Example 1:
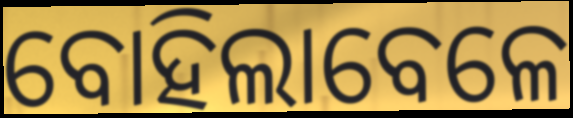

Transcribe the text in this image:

ବୋହିଲାବେଳେ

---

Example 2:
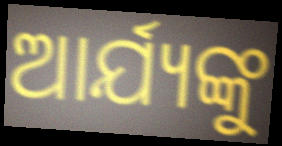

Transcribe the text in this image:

ଆର୍ଯ୍ୟଙ୍କୁ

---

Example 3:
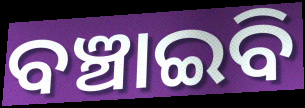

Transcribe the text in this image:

ବଞ୍ଚାଇବି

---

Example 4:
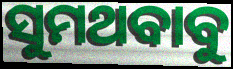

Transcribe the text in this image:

ସୁମଥବାବୁ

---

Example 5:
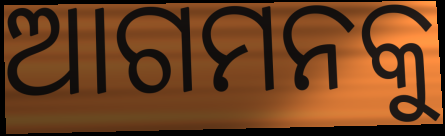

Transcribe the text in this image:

ଆଗମନକୁ